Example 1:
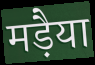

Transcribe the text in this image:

मड़ैया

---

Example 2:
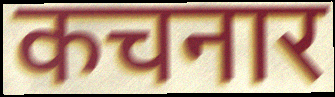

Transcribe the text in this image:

कचनार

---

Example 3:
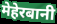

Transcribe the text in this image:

मेहेरबानी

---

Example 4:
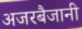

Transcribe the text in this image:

अजरबैजानी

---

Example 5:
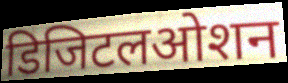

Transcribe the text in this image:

डिजिटलओशन